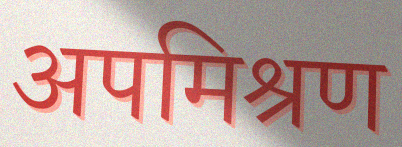
अपमिश्रण